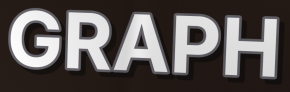
GRAPH